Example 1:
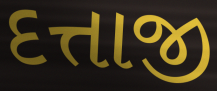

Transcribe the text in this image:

દત્તાજી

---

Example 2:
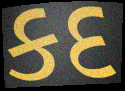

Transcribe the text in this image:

કદ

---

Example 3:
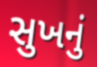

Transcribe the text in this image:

સુખનું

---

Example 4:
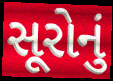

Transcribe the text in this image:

સૂરોનું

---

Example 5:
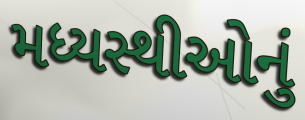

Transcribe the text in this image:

મધ્યસ્થીઓનું